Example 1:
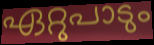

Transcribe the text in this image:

ഏറ്റുപാടും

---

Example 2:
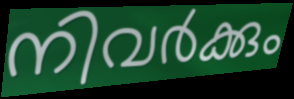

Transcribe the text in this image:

നിവർക്കും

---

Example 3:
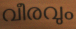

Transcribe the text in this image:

വീരവും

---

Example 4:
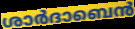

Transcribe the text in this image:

ശാർദാബെൻ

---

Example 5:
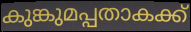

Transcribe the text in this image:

കുങ്കുമപ്പതാകക്ക്